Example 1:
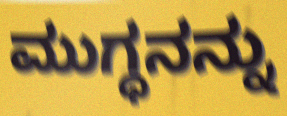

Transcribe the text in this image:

ಮುಗ್ಧನನ್ನು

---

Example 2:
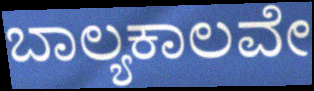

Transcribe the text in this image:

ಬಾಲ್ಯಕಾಲವೇ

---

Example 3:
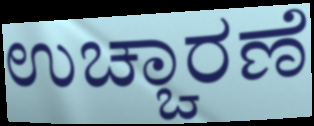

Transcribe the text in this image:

ಉಚ್ಚಾರಣೆ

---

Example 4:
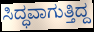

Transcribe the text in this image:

ಸಿದ್ಧವಾಗುತ್ತಿದ್ದ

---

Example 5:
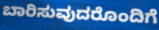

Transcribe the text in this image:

ಬಾರಿಸುವುದರೊಂದಿಗೆ